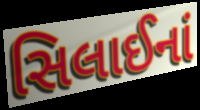
સિલાઈનાં